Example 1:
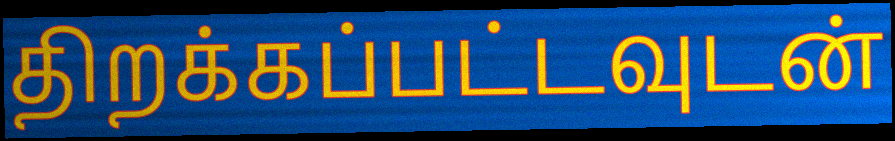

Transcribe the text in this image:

திறக்கப்பட்டவுடன்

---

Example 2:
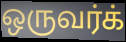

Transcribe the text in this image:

ஒருவர்க்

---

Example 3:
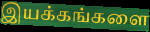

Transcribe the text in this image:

இயக்கங்களை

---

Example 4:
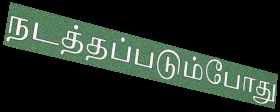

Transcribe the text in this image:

நடத்தப்படும்போது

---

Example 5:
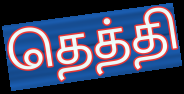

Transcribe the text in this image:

தெத்தி